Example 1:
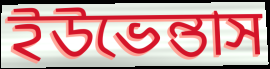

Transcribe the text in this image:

ইউভেন্তাস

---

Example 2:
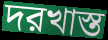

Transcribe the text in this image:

দরখাস্ত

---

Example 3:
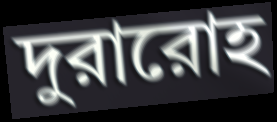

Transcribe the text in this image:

দুরারোহ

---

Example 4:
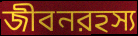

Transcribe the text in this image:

জীবনরহস্য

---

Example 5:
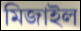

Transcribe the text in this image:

মিজাইল